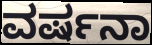
ವರ್ಷನಾ